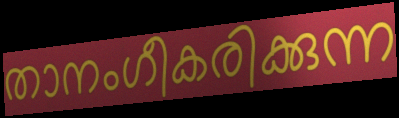
താനംഗീകരിക്കുന്ന